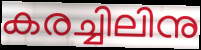
കരച്ചിലിനു